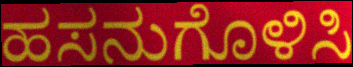
ಹಸನುಗೊಳಿಸಿ